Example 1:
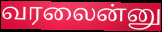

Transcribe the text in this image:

வரலைன்னு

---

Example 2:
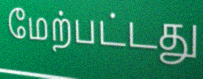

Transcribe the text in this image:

மேற்பட்டது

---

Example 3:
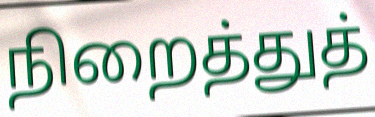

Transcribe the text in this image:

நிறைத்துத்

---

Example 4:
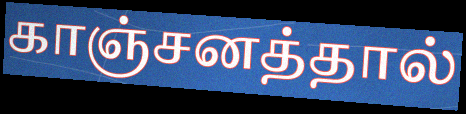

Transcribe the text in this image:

காஞ்சனத்தால்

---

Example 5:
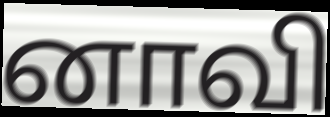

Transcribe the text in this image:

னாவி